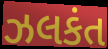
ઝલકંત